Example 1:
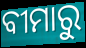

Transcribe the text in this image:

ବୀମାରୁ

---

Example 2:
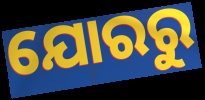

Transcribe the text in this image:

ଯୋରରୁ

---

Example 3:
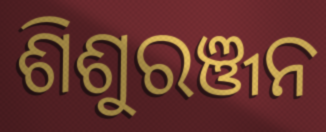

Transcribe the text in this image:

ଶିଶୁରଞ୍ଜନ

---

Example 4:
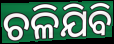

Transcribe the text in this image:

ଚଳିଯିବି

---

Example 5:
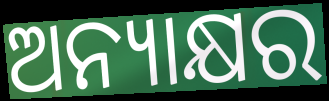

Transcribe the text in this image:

ଅନ୍ୟାକ୍ଷର